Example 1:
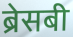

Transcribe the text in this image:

ब्रेसबी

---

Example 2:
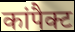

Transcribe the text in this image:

कांपैक्ट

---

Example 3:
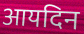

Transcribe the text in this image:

आयदिन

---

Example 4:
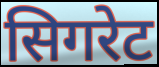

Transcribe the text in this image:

सिगरेट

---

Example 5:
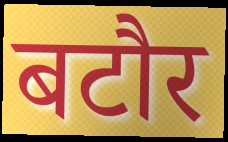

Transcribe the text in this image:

बटौर